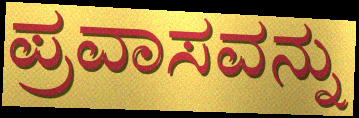
ಪ್ರವಾಸವನ್ನು